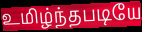
உமிழ்ந்தபடியே